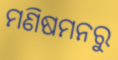
ମଣିଷମନରୁ